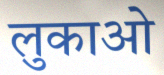
लुकाओ